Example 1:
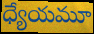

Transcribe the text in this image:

ధ్యేయమూ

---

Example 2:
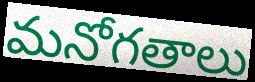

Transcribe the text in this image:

మనోగతాలు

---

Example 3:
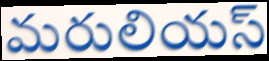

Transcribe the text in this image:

మరులియస్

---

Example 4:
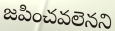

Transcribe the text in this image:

జపించవలెనని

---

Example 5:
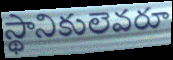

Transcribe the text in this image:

స్థానికులెవరూ